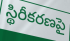
స్థిరీకరణపై